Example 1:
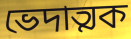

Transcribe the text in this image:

ভেদাত্মক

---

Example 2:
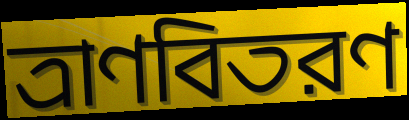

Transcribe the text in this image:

ত্রাণবিতরণ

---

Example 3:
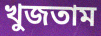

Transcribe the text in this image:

খুজতাম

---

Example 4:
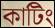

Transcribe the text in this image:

কাটিং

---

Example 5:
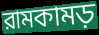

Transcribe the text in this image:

রামকামড়